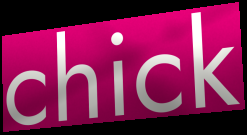
chick